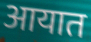
आयात